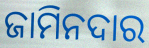
ଜାମିନଦାର